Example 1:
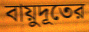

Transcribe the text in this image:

বায়ুদূতের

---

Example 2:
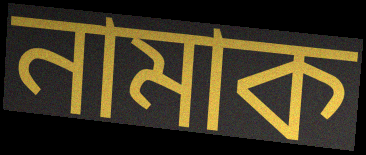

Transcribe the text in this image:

নামাক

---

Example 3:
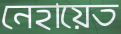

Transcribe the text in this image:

নেহায়েত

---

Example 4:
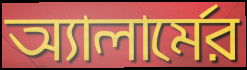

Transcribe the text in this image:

অ্যালার্মের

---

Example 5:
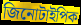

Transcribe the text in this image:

জিনোটাইপিক